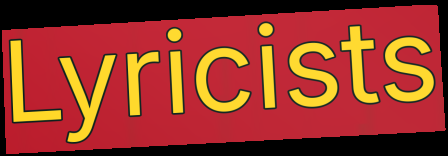
Lyricists